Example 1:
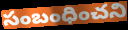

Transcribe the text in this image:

సంబంధించని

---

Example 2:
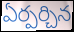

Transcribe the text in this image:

ఏర్పర్చిన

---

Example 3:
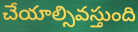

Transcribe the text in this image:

చేయాల్సివస్తుంది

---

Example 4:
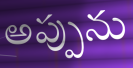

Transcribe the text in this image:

అప్పును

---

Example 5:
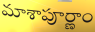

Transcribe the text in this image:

మాశాపూర్ణాం